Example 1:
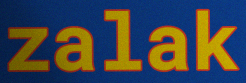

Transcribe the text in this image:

zalak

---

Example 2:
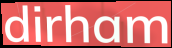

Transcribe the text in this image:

dirham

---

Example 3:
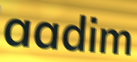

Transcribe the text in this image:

aadim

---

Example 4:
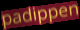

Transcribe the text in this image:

padippen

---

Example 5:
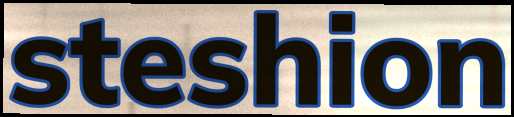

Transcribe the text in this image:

steshion